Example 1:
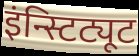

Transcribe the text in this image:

इंन्स्टिट्यूट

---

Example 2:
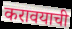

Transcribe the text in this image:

करावयाची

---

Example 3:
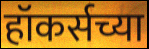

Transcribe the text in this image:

हॉकर्सच्या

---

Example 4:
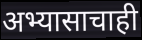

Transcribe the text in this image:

अभ्यासाचाही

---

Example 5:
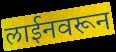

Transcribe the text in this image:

लाईनवरून